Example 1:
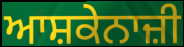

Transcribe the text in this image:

ਆਸ਼ਕੇਨਾਜ਼ੀ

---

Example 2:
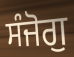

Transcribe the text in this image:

ਸੰਜੋਗੁ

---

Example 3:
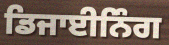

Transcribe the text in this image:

ਡਿਜਾਈਨਿੰਗ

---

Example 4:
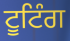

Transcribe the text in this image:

ਟੂਟਿੰਗ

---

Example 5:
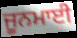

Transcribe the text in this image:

ਜੂਨਮਾਈ